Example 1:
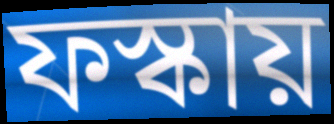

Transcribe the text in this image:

ফস্কায়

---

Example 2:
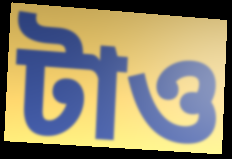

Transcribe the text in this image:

টাও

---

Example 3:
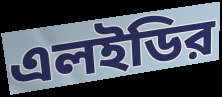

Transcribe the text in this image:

এলইডির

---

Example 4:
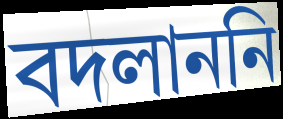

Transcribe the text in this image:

বদলাননি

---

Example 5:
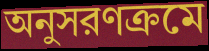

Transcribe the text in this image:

অনুসরণক্রমে